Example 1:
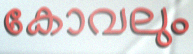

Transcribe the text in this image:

കോവലും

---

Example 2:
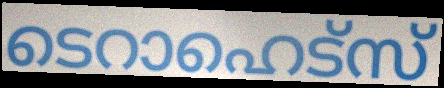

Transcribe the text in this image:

ടെറാഹെട്സ്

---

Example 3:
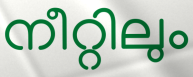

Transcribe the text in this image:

നീറ്റിലും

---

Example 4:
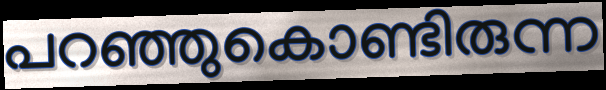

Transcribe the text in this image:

പറഞ്ഞുകൊണ്ടിരുന്ന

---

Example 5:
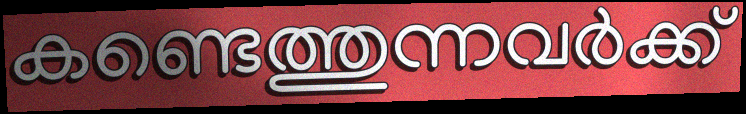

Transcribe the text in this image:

കണ്ടെത്തുന്നവർക്ക്